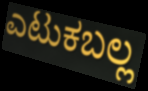
ಎಟುಕಬಲ್ಲ